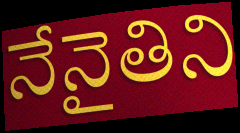
నేనైతిని